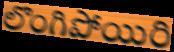
లొంగిపోయిరి